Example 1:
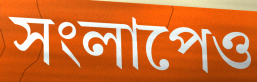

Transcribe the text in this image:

সংলাপেও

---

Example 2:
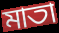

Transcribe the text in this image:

মাতা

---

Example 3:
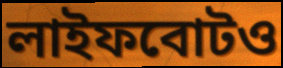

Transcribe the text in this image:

লাইফবোটও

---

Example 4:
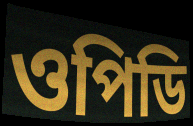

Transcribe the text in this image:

ওপিডি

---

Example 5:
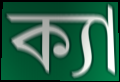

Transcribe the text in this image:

ক্যা